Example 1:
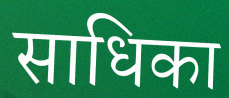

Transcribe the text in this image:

साधिका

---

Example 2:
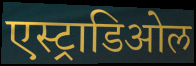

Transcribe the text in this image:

एस्ट्राडिओल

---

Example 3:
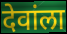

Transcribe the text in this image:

देवांला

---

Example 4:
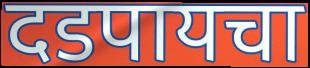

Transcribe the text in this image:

दडपायचा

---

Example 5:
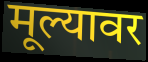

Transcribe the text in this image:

मूल्यावर